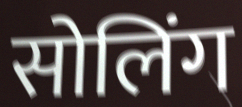
सोलिंग